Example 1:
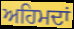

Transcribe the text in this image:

ਅਹਿਮਦਾਂ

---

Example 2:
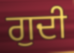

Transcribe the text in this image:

ਗੁਦੀ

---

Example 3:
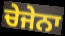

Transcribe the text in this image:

ਚੇਜੇਨਾ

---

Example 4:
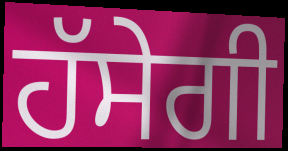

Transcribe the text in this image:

ਹੱਸੇਗੀ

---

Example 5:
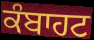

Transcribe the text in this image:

ਕੰਬਾਹਟ